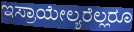
ಇಸ್ರಾಯೇಲ್ಯರೆಲ್ಲರೂ